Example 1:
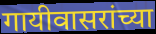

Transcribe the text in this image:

गायीवासरांच्या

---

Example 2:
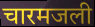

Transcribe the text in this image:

चारमजली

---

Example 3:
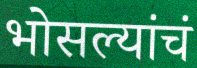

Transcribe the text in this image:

भोसल्यांचं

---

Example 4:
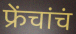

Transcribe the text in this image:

फ्रेंचांचं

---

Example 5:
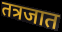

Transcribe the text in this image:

तत्रजात